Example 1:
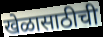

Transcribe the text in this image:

खेळासाठीची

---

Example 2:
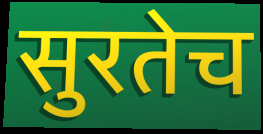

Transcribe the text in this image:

सुरतेच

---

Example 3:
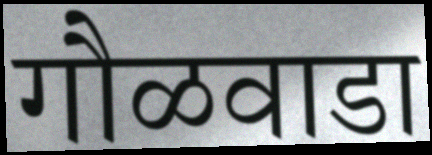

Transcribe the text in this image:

गौळवाडा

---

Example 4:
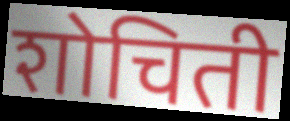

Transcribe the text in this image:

शोचिती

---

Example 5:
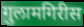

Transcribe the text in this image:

गुलामगिरीस